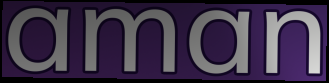
aman